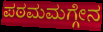
ಪಠಮಮಗ್ಗೇನ